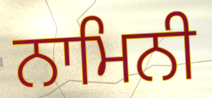
ਨਾਮਿਨੀ